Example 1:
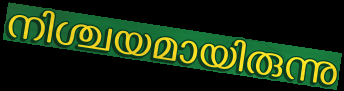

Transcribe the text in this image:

നിശ്ചയമായിരുന്നു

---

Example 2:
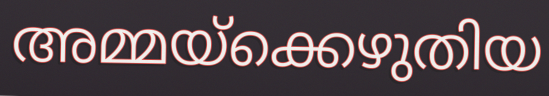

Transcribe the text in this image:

അമ്മയ്ക്കെഴുതിയ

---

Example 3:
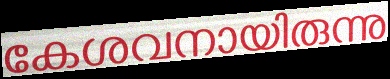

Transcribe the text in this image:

കേശവനായിരുന്നു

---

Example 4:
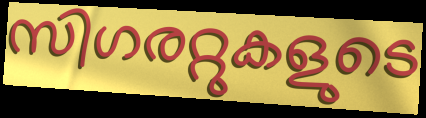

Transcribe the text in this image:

സിഗരറ്റുകളുടെ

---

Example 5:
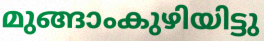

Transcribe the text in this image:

മുങ്ങാംകുഴിയിട്ടു